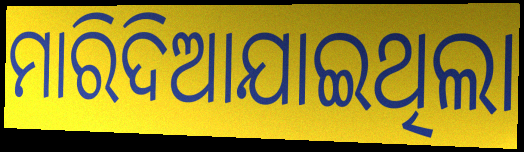
ମାରିଦିଆଯାଇଥିଲା